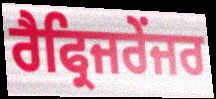
ਰੈਫ੍ਰਿਜਰੇਂਜਰ